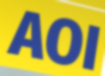
AOI